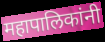
महापालिकांनी